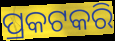
ପ୍ରକଟକରି